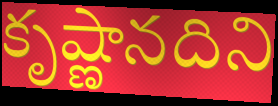
కృష్ణానదిని